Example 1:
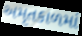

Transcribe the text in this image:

અમૃતકાળમાં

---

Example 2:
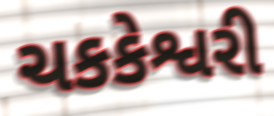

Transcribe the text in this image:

ચકકેશ્વરી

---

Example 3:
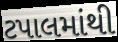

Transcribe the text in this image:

ટપાલમાંથી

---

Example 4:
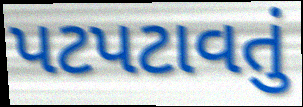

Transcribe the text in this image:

પટપટાવતું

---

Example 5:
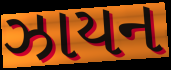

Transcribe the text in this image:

ઝાયન